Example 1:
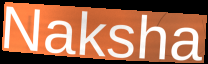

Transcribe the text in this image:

Naksha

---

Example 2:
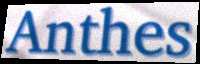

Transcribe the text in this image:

Anthes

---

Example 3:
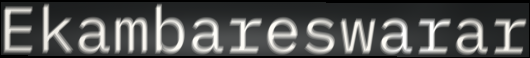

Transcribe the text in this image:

Ekambareswarar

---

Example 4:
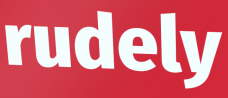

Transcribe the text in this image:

rudely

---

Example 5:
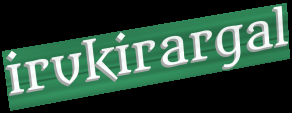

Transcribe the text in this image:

irukirargal